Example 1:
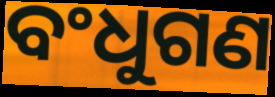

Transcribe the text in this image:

ବଂଧୁଗଣ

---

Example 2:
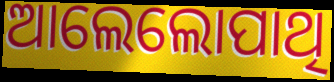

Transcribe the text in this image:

ଆଲେଲୋପାଥି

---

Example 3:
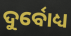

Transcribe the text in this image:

ଦୁର୍ବୋଧ୍ୟ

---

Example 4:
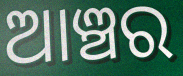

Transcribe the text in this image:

ଆଞ୍ଚର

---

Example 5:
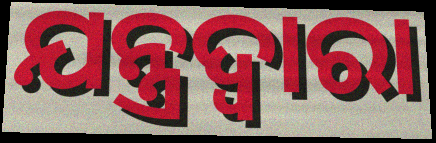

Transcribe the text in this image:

ଯନ୍ତ୍ରଦ୍ବାରା